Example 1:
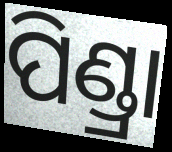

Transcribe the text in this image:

ପିଣ୍ଡ୍ରା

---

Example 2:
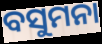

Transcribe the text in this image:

ବସୁମନା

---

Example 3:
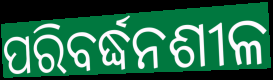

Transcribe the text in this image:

ପରିବର୍ଦ୍ଧନଶୀଳ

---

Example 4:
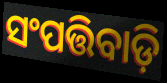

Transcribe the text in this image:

ସଂପତ୍ତିବାଡ଼ି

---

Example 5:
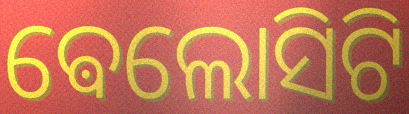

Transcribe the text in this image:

ଵେଲୋସିଟି